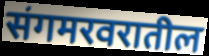
संगमरवरातील